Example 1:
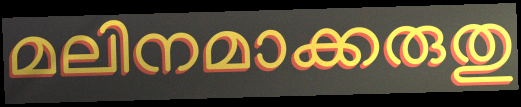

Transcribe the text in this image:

മലിനമാക്കരുതു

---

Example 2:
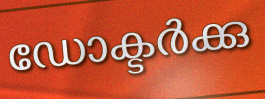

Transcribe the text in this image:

ഡോക്ടർക്കു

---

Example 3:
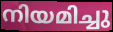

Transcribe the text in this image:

നിയമിച്ചു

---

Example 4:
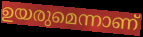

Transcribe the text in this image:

ഉയരുമെന്നാണ്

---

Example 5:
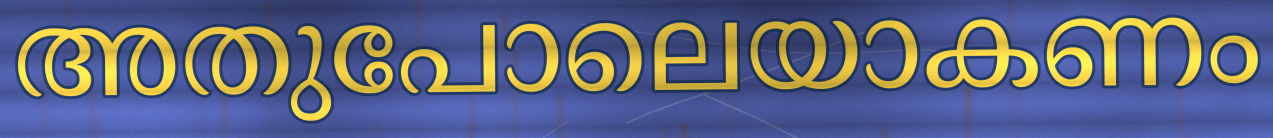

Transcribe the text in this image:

അതുപോലെയാകണം